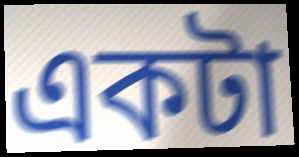
একটা